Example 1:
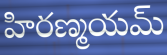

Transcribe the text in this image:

హిరణ్మయమ్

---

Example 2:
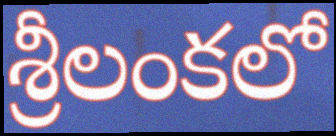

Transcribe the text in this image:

శ్రీలంకలో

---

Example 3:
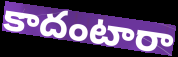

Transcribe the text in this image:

కాదంటారా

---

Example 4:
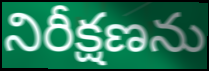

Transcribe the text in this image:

నిరీక్షణను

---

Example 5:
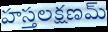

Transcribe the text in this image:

హస్తలక్షణమ్